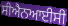
ਸੀਐਨਆਈਸੀ